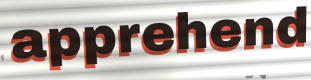
apprehend